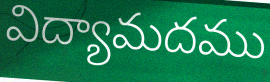
విద్యామదము